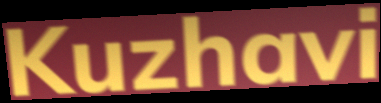
Kuzhavi